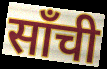
साँची